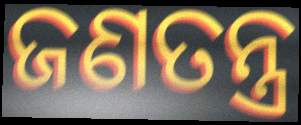
ଜଣତନ୍ତ୍ର